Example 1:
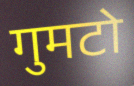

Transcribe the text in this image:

गुमटो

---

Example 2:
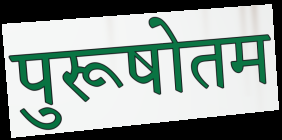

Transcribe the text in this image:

पुरूषोतम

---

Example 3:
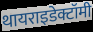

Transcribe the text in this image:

थायराइडेक्टॉमी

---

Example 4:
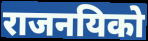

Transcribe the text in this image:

राजनयिको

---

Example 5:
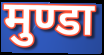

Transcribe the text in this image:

मुण्डा